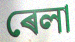
ৰেলা